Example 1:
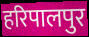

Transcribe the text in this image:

हरिपालपुर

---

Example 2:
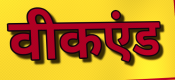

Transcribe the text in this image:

वीकएंड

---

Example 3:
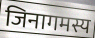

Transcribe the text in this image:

जिनागमस्य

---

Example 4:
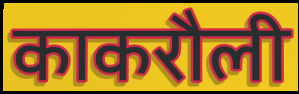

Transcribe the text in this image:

काकरौली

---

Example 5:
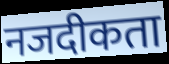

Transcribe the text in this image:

नजदीकता